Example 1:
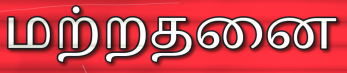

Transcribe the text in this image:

மற்றதனை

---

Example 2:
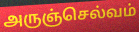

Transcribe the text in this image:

அருஞ்செல்வம்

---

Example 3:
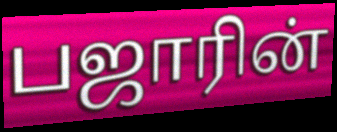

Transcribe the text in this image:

பஜாரின்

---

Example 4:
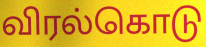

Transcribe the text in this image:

விரல்கொடு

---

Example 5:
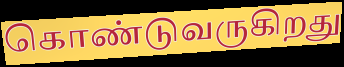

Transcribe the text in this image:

கொண்டுவருகிறது